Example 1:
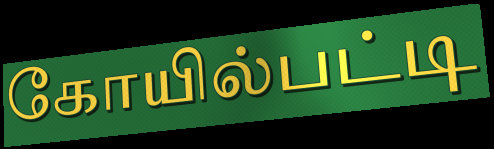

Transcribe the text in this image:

கோயில்பட்டி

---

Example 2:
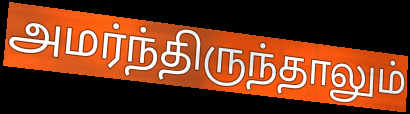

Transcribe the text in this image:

அமர்ந்திருந்தாலும்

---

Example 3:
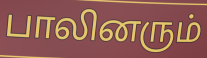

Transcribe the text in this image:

பாலினரும்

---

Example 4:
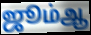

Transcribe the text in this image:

ஜூம்ஆ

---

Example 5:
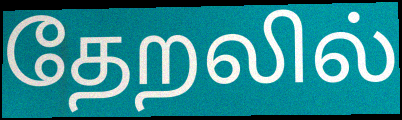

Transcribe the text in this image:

தேறலில்